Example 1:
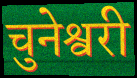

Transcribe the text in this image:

चुनेश्वरी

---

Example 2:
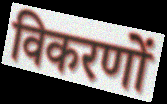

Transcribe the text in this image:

विकरणों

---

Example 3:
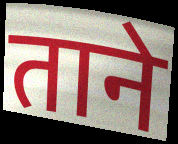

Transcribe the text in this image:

ताने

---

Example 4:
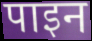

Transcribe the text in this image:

पाइन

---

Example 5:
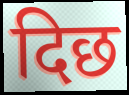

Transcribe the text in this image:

दिछ